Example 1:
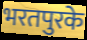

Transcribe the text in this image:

भरतपुरके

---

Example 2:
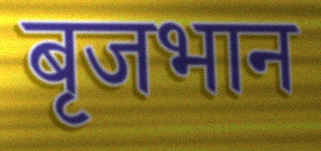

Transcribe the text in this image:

बृजभान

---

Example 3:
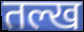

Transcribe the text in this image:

तल्‍ख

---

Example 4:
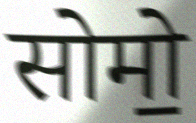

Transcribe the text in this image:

सोमो॒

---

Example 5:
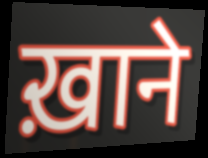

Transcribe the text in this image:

ख़ाने